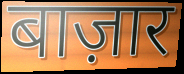
बाज़ार